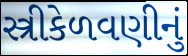
સ્ત્રીકેળવણીનું